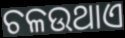
ଚଳଉଥାଏ